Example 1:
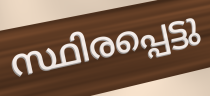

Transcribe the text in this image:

സ്ഥിരപ്പെട്ടു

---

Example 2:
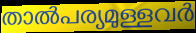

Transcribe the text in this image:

താൽപര്യമുള്ളവർ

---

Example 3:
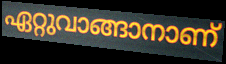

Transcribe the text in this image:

ഏറ്റുവാങ്ങാനാണ്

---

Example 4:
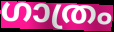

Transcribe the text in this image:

ഗാത്രം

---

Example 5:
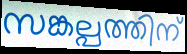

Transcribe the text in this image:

സങ്കല്പത്തിന്